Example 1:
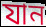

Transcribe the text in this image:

যান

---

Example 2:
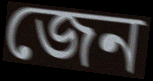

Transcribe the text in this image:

জেন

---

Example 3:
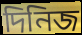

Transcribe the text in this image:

দিনিজ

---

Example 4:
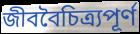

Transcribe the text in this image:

জীববৈচিত্র্যপূর্ণ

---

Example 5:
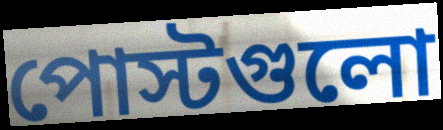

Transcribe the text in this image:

পোস্টগুলো